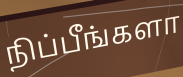
நிப்பீங்களா